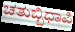
ಚತುಬ್ಬಿಧಾಪಿ